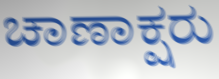
ಚಾಣಾಕ್ಷರು